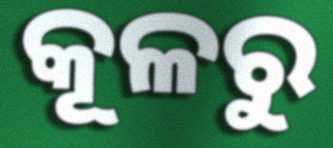
କୂଳରୁ